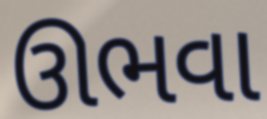
ઊભવા